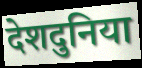
देशदुनिया